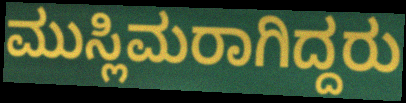
ಮುಸ್ಲಿಮರಾಗಿದ್ದರು